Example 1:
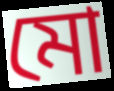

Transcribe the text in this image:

মো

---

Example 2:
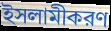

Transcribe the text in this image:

ইসলামীকরণ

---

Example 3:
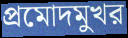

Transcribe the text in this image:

প্রমোদমুখর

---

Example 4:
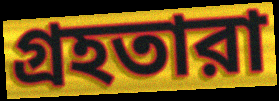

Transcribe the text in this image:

গ্রহতারা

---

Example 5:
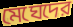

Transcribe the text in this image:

মেঘেদের